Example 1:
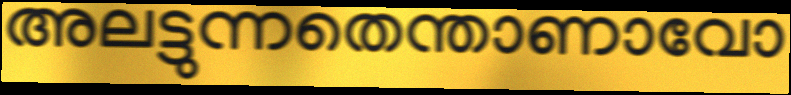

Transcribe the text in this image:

അലട്ടുന്നതെന്താണാവോ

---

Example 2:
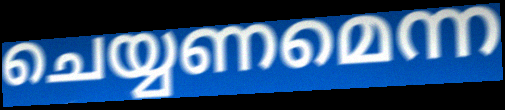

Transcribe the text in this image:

ചെയ്യണമെന്ന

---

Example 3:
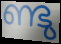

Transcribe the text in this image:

ണ്ടു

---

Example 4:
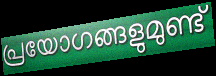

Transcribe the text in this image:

പ്രയോഗങ്ങളുമുണ്ട്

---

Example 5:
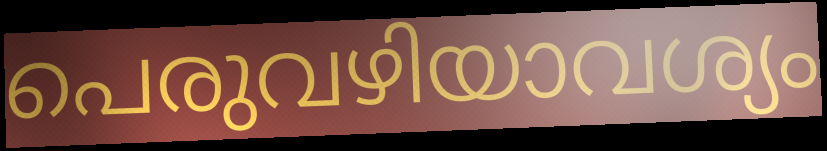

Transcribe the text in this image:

പെരുവഴിയാവശ്യം